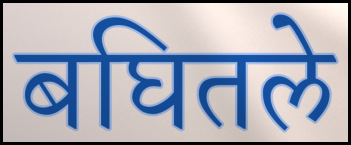
बघितले